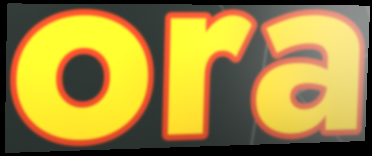
ora